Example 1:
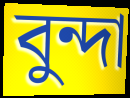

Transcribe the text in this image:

বুন্দা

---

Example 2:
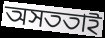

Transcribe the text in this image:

অসততাই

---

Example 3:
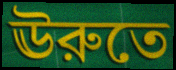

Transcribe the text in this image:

ঊরুতে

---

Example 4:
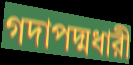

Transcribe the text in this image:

গদাপদ্মধারী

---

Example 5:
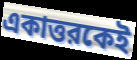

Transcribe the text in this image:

একাত্তরকেই